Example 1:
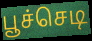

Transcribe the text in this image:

பூச்செடி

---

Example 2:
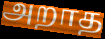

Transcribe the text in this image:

அறாத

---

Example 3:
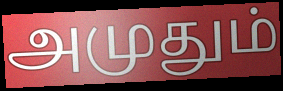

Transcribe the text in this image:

அமுதும்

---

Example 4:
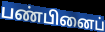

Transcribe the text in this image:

பண்பினைப்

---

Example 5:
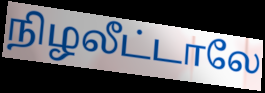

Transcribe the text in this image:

நிழலீட்டாலே